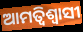
ଆମତ୍ବିଶ୍ୱାସୀ